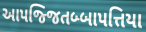
આપજ્જિતબ્બાપત્તિયા